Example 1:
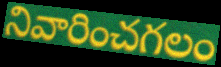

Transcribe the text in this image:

నివారించగలం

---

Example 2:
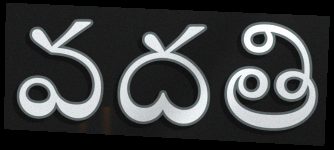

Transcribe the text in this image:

వదతి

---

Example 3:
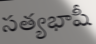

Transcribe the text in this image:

సత్యభాషీ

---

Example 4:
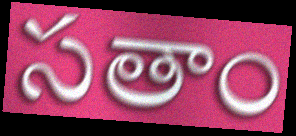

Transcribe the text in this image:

సతాం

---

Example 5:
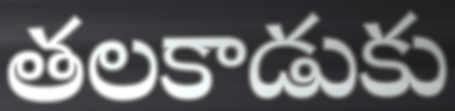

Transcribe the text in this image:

తలకాడుకు